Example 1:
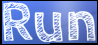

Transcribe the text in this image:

Run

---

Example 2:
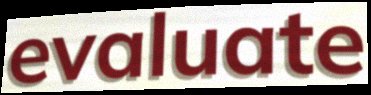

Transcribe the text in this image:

evaluate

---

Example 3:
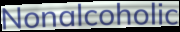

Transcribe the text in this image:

Nonalcoholic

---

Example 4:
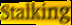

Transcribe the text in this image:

Stalking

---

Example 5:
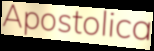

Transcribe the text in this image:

Apostolica